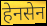
हेनसेन